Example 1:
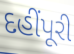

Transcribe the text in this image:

દહીંપૂરી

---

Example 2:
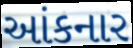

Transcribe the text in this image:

આંકનાર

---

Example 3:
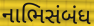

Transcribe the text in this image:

નાભિસંબંધ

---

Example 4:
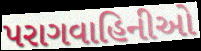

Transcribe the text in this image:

પરાગવાહિનીઓ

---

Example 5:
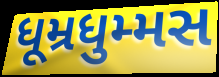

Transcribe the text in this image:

ધૂમ્રધુમ્મસ